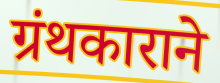
ग्रंथकाराने